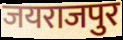
जयराजपुर